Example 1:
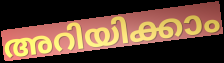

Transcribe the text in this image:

അറിയിക്കാം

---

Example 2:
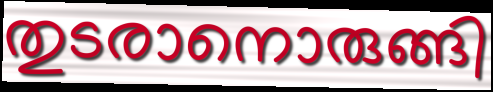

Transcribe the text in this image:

തുടരാനൊരുങ്ങി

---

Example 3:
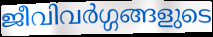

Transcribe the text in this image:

ജീവിവർഗ്ഗങ്ങളുടെ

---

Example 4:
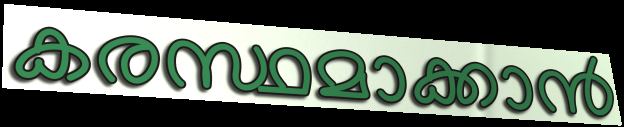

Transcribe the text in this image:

കരസ്ഥമാക്കാൻ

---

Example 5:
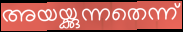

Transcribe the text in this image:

അയയ്ക്കുന്നതെന്ന്